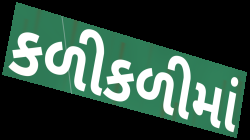
કળીકળીમાં